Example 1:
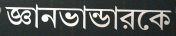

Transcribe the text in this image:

জ্ঞানভান্ডারকে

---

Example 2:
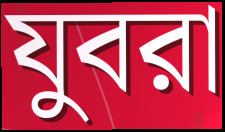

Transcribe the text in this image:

যুবরা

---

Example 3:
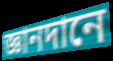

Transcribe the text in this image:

জ্ঞানদানে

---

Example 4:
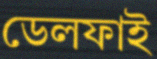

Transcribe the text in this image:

ডেলফাই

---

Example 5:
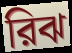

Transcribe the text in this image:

রিঝ